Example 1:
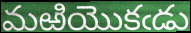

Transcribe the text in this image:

మఱియొకఁడు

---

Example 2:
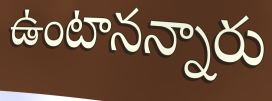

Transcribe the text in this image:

ఉంటానన్నారు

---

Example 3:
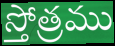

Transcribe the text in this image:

స్తోత్రము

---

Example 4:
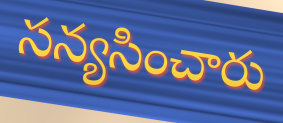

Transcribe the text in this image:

సన్యసించారు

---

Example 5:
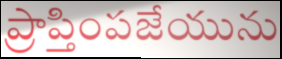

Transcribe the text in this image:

ప్రాప్తింపజేయును